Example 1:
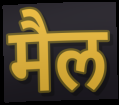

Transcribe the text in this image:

मैल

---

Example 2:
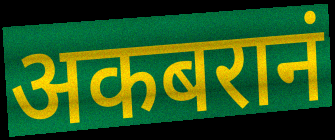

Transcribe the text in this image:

अकबरानं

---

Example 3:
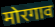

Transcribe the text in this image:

मोरगाव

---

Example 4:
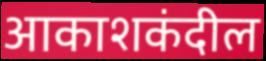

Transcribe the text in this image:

आकाशकंदील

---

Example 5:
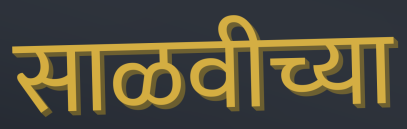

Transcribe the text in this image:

साळवीच्या